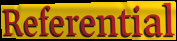
Referential